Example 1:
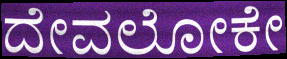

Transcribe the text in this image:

ದೇವಲೋಕೇ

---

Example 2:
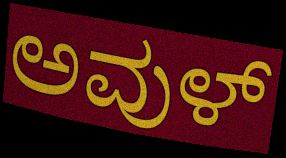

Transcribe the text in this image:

ಅವುಳ್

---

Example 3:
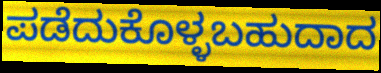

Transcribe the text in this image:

ಪಡೆದುಕೊಳ್ಳಬಹುದಾದ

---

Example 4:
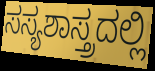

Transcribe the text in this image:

ಸಸ್ಯಶಾಸ್ತ್ರದಲ್ಲಿ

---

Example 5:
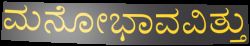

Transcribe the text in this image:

ಮನೋಭಾವವಿತ್ತು